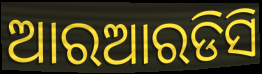
ଆରଆରଡିସି